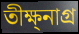
তীক্ষ্নাগ্র